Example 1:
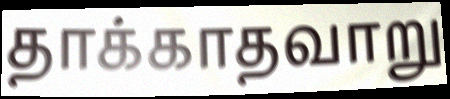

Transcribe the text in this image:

தாக்காதவாறு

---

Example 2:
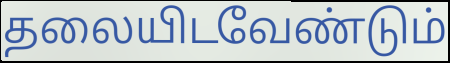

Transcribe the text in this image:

தலையிடவேண்டும்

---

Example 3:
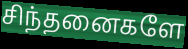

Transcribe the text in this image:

சிந்தனைகளே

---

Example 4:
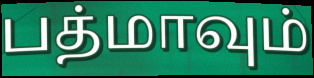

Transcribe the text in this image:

பத்மாவும்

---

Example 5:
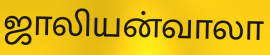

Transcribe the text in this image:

ஜாலியன்வாலா